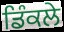
ਡਿੰਕਲੇ